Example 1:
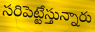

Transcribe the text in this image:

సరిపెట్టేస్తున్నారు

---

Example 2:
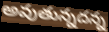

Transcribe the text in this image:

అవుతున్నదన్న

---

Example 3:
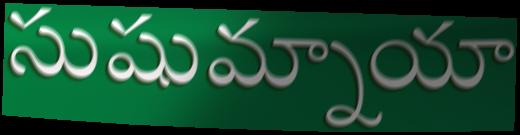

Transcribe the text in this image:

సుషుమ్నాయా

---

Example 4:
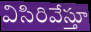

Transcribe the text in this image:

విసిరివేస్తూ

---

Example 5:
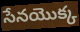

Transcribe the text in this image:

సేనయొక్క